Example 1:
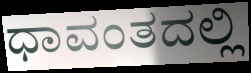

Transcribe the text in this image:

ಧಾವಂತದಲ್ಲಿ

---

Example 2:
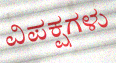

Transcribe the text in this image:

ವಿಪಕ್ಷಗಳು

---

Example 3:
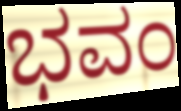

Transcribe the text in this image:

ಭವಂ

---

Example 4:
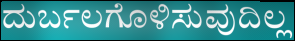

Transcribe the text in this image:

ದುರ್ಬಲಗೊಳಿಸುವುದಿಲ್ಲ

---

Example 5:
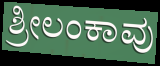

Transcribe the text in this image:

ಶ್ರೀಲಂಕಾವು